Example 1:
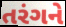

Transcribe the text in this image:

તરંગને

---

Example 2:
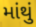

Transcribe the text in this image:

માંથું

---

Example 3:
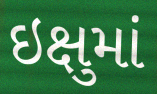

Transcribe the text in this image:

ઇક્ષુમાં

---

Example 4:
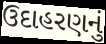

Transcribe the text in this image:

ઉદાહરણનું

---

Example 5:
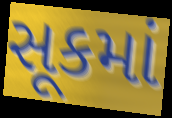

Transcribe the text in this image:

સૂકમાં